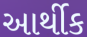
આર્થીક